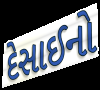
દેસાઈનો